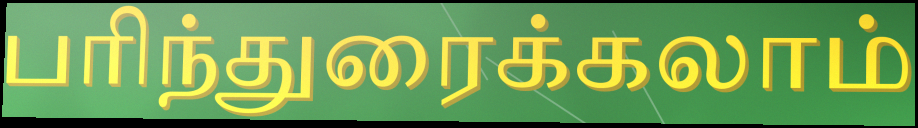
பரிந்துரைக்கலாம்